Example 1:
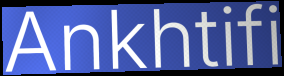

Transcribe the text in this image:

Ankhtifi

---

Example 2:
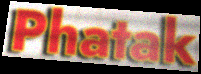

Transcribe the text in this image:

Phatak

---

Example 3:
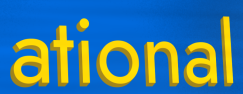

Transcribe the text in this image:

ational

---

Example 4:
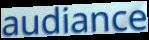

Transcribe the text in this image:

audiance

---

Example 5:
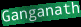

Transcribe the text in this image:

Ganganath